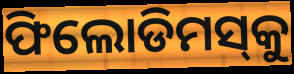
ଫିଲୋଡିମସ୍‌କୁ